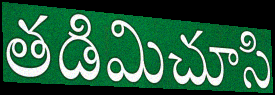
తడిమిచూసి